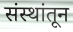
संस्थांतून